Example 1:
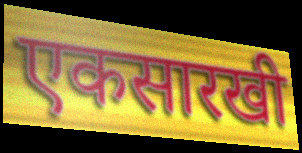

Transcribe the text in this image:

एकसारखी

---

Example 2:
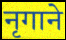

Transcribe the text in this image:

नृगाने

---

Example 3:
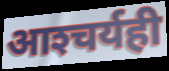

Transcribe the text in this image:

आश्‍चर्यही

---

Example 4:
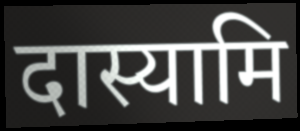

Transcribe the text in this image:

दास्यामि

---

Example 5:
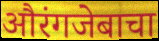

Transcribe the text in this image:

औरंगजेबाचा